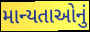
માન્યતાઓનું